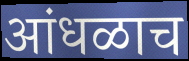
आंधळाच